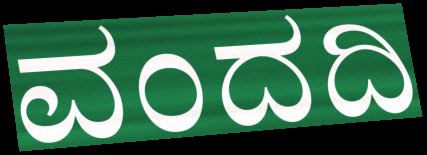
ವಂದದಿ